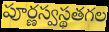
పూర్ణస్వస్థతగల